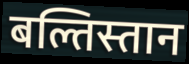
बल्तिस्तान